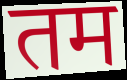
तम